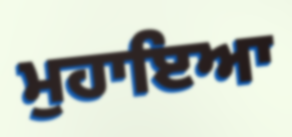
ਮੁਹਾਇਆ